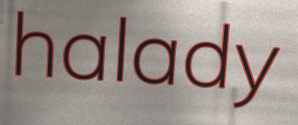
halady